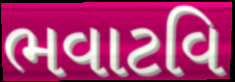
ભવાટવિ